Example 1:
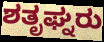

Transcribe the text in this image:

ಶತೃಘ್ನರು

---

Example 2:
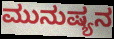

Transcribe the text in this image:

ಮುನುಷ್ಯನ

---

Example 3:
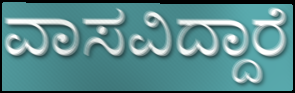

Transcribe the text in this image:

ವಾಸವಿದ್ದಾರೆ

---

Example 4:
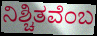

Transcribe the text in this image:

ನಿಶ್ಚಿತವೆಂಬ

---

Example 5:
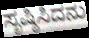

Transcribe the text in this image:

ಸೃಷ್ಠಿಸಿದನು